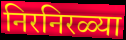
निरनिरळ्या